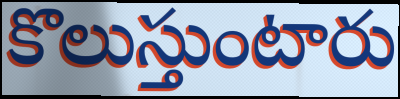
కొలుస్తుంటారు